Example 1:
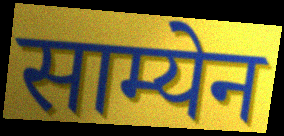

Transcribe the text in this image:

साम्येन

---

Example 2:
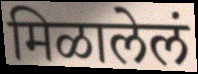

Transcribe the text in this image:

मिळालेलं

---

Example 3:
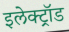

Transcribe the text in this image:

इलेक्ट्रॉड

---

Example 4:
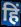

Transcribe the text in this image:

हिं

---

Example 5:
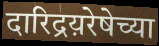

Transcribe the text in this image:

दारिद्रय़रेषेच्या